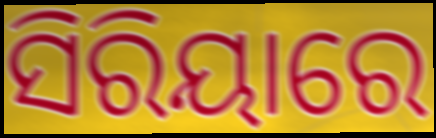
ସିରିୟାରେ